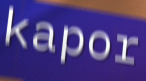
kapor